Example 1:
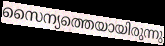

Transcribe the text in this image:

സൈന്യത്തെയായിരുന്നു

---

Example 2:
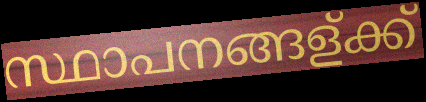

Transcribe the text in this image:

സ്ഥാപനങ്ങള്ക്ക്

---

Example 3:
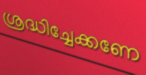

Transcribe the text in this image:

ശ്രദ്ധിച്ചേക്കണേ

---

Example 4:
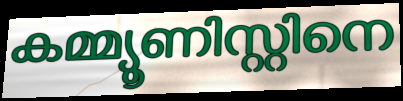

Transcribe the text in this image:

കമ്മ്യൂണിസ്റ്റിനെ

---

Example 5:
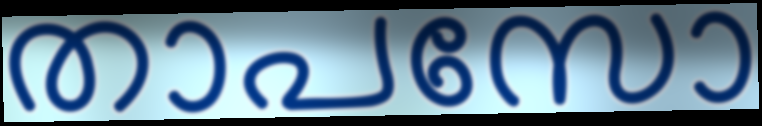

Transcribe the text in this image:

താപസോ